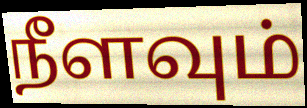
நீளவும்